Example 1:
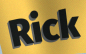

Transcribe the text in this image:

Rick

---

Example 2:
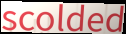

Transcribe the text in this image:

scolded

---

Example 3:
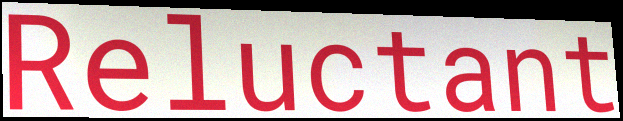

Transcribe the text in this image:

Reluctant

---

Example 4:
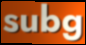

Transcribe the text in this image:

subg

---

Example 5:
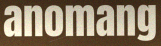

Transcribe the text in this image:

anomang